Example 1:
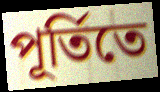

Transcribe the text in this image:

পূর্তিতে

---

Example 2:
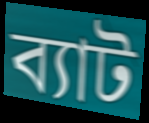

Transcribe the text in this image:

ব্যাট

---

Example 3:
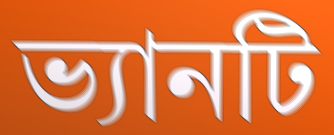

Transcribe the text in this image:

ভ্যানটি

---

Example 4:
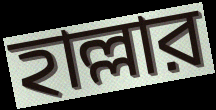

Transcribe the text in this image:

হাল্লার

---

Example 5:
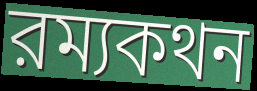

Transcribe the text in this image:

রম্যকথন